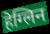
हेग्लिन